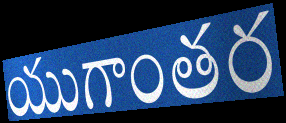
యుగాంతర